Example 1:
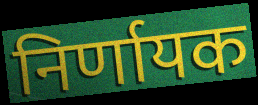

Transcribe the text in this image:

निर्णायक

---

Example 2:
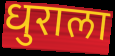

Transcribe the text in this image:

धुराला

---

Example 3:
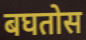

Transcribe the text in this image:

बघतोस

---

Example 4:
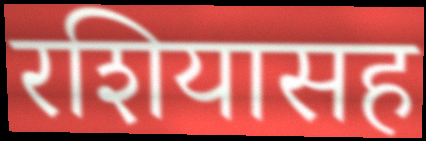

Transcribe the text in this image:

रशियासह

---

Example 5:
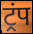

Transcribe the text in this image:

ट्रंप